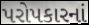
પરોપકારનાં